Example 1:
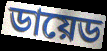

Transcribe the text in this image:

ডায়েড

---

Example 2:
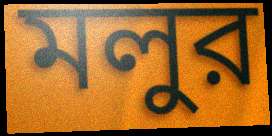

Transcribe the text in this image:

মলুর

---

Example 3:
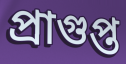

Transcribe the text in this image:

প্রাগুপ্ত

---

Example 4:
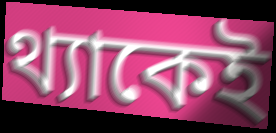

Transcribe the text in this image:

থ্যাকেই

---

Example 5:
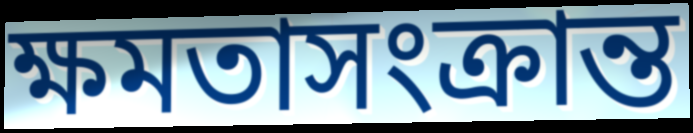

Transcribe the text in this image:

ক্ষমতাসংক্রান্ত